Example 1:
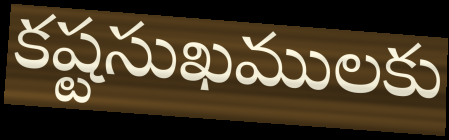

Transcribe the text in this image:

కష్టసుఖములకు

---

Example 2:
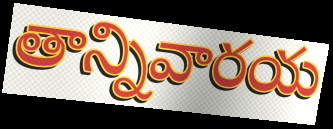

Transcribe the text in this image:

తాన్నివారయ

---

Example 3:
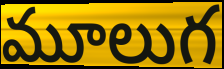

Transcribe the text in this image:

మూలుగ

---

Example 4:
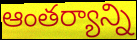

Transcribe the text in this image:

ఆంతర్యాన్ని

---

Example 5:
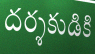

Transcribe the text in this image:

దర్శకుడికి